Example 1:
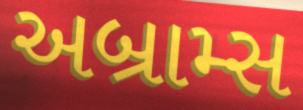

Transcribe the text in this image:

અબ્રામ્સ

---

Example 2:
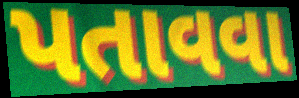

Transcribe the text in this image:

પતાવવા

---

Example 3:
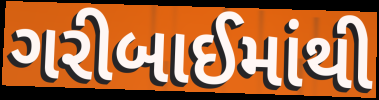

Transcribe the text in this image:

ગરીબાઈમાંથી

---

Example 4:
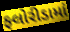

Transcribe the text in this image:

ફ્લોરીડામાં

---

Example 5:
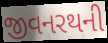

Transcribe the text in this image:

જીવનરથની